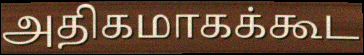
அதிகமாகக்கூட